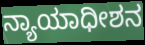
ನ್ಯಾಯಾಧೀಶನ